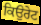
ਕਿਉਰੇਟ